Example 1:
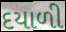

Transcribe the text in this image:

દયાળી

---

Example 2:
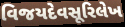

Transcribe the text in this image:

વિજયદેવસૂરિલેખ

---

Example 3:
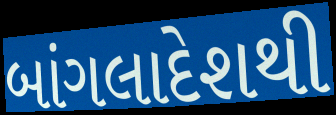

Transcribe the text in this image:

બાંગલાદેશથી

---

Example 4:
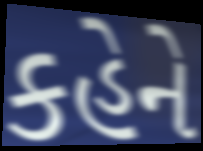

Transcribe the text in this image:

કહેને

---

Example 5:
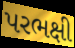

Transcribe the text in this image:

પરભક્ષી